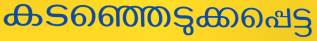
കടഞ്ഞെടുക്കപ്പെട്ട